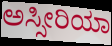
ಅಸ್ಸೀರಿಯಾ